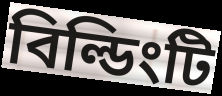
বিল্ডিংটি